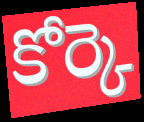
కోర్కె